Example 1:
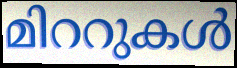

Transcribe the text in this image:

മിററുകൾ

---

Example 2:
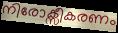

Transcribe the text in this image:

നിരോക്സീകരണം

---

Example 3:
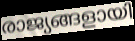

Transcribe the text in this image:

രാജ്യങ്ങളായി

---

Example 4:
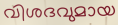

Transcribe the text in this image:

വിശദവുമായ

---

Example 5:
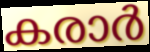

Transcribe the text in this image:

കരാർ